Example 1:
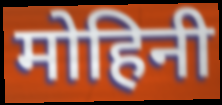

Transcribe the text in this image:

मोहिनी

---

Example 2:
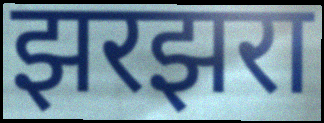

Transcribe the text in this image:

झरझरा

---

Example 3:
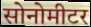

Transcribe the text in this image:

सोनोमीटर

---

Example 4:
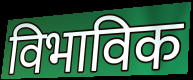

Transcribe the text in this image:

विभाविक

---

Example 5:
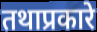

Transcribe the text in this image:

तथाप्रकारे